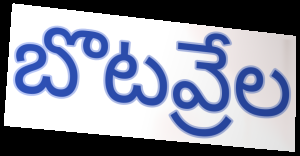
బొటవ్రేల